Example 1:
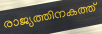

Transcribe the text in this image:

രാജ്യത്തിനകത്ത്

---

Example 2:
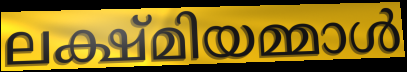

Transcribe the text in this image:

ലക്ഷ്മിയമ്മാൾ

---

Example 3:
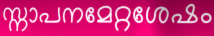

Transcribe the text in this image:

സ്നാപനമേറ്റശേഷം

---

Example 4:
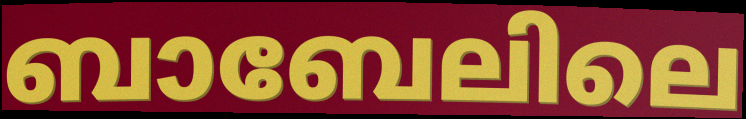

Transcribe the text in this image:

ബാബേലിലെ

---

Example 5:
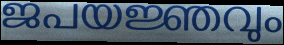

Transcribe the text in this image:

ജപയജ്ഞവും